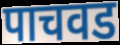
पाचवड